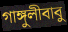
গাঙ্গুলীবাবু